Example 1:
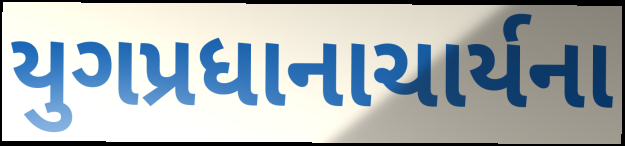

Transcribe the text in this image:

યુગપ્રધાનાચાર્યના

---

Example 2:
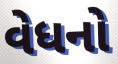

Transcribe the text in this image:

વેધનો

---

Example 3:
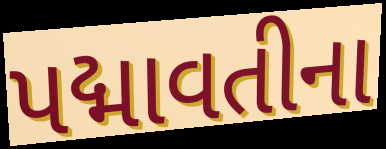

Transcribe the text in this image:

પદ્માવતીના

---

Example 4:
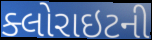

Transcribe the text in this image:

ક્લોરાઇટની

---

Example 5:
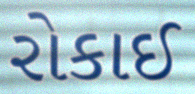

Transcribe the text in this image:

રોકાઈ